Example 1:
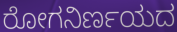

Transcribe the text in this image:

ರೋಗನಿರ್ಣಯದ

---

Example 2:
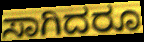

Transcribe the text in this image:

ಸಾಗಿದರೂ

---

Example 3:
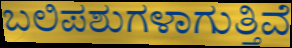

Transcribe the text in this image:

ಬಲಿಪಶುಗಳಾಗುತ್ತಿವೆ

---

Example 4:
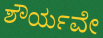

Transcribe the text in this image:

ಶೌರ್ಯವೇ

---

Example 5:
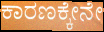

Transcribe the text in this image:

ಕಾರಣಕ್ಕೇನೇ